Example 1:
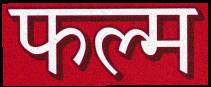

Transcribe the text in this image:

फल्म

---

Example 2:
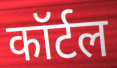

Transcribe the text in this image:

कॉर्टल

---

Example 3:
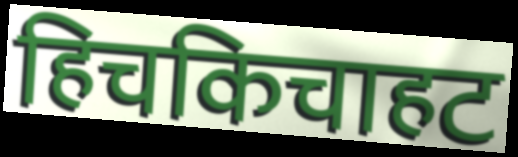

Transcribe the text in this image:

हिचकिचाहट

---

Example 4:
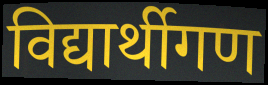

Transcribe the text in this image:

विद्यार्थीगण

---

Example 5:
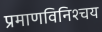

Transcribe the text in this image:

प्रमाणविनिश्चय